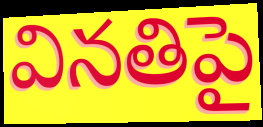
వినతిపై